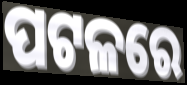
ପଟଳରେ